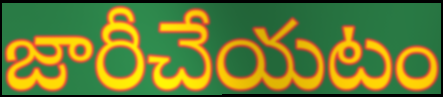
జారీచేయటం